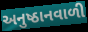
અનુષ્ઠાનવાળી